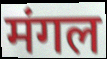
मंगल